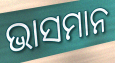
ଭାସମାନ